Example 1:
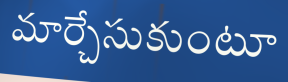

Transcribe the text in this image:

మార్చేసుకుంటూ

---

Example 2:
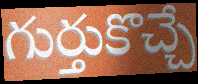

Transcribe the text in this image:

గుర్తుకొచ్చే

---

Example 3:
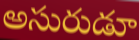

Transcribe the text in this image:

అసురుడూ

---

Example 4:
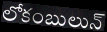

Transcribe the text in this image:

లోకంబులున్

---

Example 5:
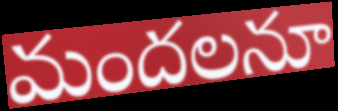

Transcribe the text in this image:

మందలనూ